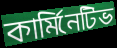
কার্মিনেটিভ